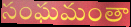
సంఘమంతా